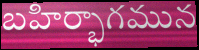
బహిర్భాగమున